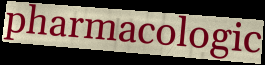
pharmacologic